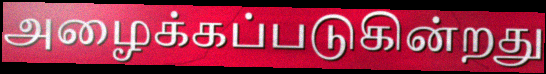
அழைக்கப்படுகின்றது